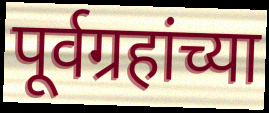
पूर्वग्रहांच्या